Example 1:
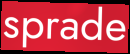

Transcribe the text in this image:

sprade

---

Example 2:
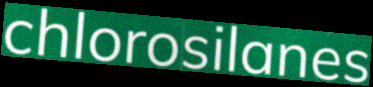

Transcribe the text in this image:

chlorosilanes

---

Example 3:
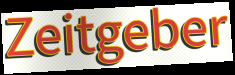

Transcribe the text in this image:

Zeitgeber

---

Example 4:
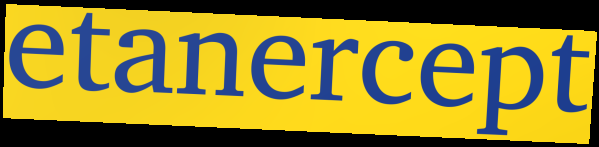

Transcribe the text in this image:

etanercept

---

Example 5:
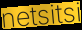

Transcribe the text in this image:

netsitsi